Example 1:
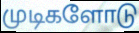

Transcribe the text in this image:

முடிகளோடு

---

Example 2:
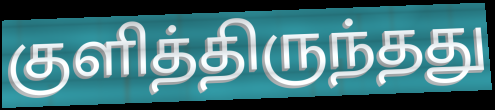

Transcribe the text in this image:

குளித்திருந்தது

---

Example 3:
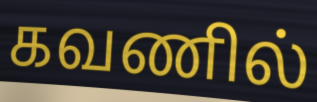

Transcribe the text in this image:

கவணில்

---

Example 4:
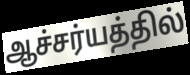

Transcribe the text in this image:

ஆச்சர்யத்தில்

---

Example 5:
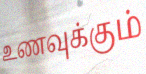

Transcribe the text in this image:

உணவுக்கும்